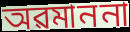
অৱমাননা